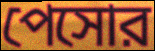
পেসোর